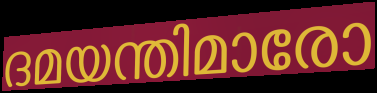
ദമയന്തിമാരോ